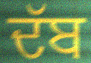
ਦੱਬ